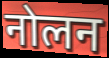
नोलन